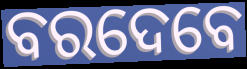
ବରଦେବେ